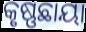
କୃଷ୍ଣଛାୟା